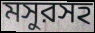
মসুরসহ